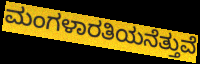
ಮಂಗಳಾರತಿಯನೆತ್ತುವೆ